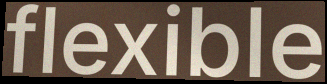
flexible